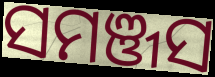
ସମଞ୍ଜସ